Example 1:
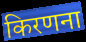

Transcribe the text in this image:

किरणना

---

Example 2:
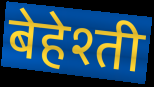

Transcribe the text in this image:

बेहेश्ती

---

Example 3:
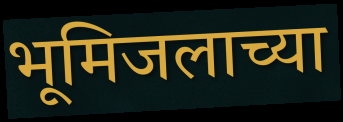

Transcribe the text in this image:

भूमिजलाच्या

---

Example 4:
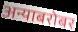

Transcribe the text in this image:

अन्याबरोबर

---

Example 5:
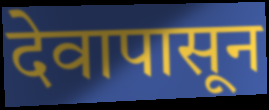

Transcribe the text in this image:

देवापासून